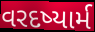
વરદષ્યાર્મ